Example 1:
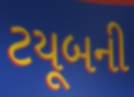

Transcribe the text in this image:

ટયૂબની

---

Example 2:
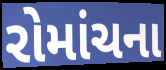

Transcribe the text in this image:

રોમાંચના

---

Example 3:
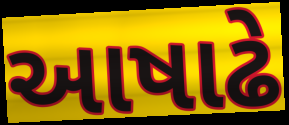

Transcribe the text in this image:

આષાઢે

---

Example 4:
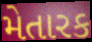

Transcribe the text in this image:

મેતારક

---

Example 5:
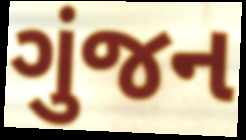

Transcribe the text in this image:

ગુંજન